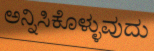
ಅನ್ನಿಸಿಕೊಳ್ಳುವುದು